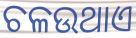
ଚଳଉଥାଏ